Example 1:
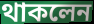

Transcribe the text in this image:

থাকলেন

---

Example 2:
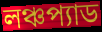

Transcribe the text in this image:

লঞ্চপ্যাড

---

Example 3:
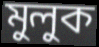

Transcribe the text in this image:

মুলুক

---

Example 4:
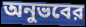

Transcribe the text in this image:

অনুভবের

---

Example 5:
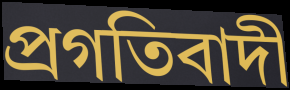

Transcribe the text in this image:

প্রগতিবাদী